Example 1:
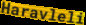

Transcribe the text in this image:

Haravleli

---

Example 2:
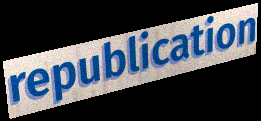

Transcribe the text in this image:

republication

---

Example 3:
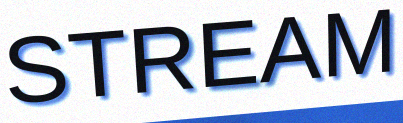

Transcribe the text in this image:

STREAM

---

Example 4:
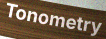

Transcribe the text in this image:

Tonometry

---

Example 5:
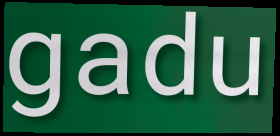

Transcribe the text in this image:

gadu